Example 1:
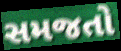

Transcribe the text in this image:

સમજતો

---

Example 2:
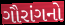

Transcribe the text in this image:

ગૌરાંગનો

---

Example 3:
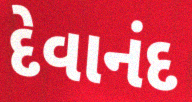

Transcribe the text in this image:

દેવાનંદ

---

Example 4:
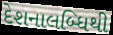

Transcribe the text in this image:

દેશનાલબ્ધિથી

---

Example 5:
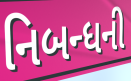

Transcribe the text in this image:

નિબન્ધની